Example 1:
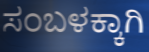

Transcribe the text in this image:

ಸಂಬಳಕ್ಕಾಗಿ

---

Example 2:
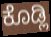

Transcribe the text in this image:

ಕೊಡ್ಲಿ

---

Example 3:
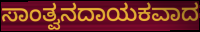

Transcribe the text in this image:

ಸಾಂತ್ವನದಾಯಕವಾದ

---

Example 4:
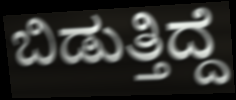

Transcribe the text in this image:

ಬಿಡುತ್ತಿದ್ದೆ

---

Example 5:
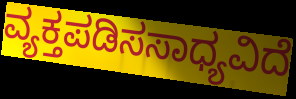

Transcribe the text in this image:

ವ್ಯಕ್ತಪಡಿಸಸಾಧ್ಯವಿದೆ